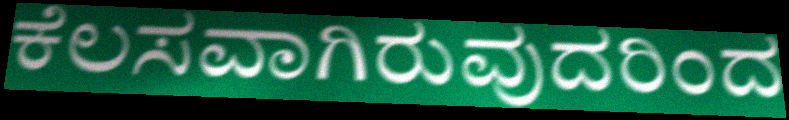
ಕೆಲಸವಾಗಿರುವುದರಿಂದ